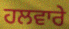
ਹਲਵਾਰੇ